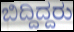
ಬಿದ್ದಿದ್ದರು